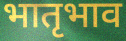
भातृभाव